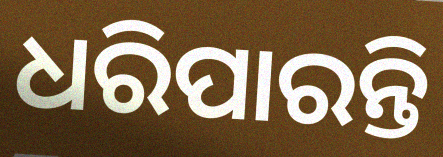
ଧରିପାରନ୍ତି